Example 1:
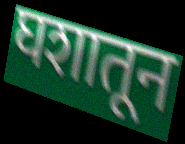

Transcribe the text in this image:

घशातून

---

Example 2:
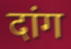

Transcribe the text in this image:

दांग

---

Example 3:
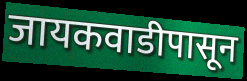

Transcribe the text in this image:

जायकवाडीपासून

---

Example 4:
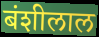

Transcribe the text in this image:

बंशीलाल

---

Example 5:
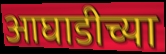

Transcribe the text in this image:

आघाडीच्‍या